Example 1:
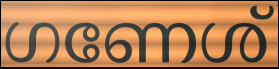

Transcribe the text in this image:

ഗണേശ്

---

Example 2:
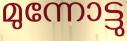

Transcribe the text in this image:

മുന്നോട്ടു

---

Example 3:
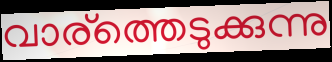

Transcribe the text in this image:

വാര്ത്തെടുക്കുന്നു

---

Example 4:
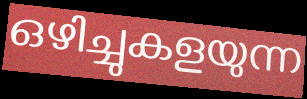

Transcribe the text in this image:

ഒഴിച്ചുകളയുന്ന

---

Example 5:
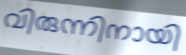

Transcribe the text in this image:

വിരുന്നിനായി